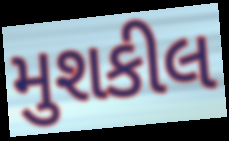
મુશકીલ